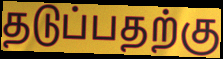
தடுப்பதற்கு